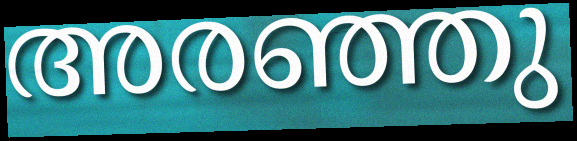
അരഞ്ഞു